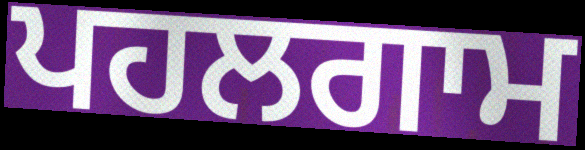
ਪਹਲਗਾਮ